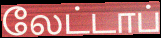
லேட்டாப்